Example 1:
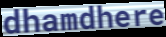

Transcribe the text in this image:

dhamdhere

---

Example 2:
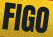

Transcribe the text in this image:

FIGO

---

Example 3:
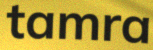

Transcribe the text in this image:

tamra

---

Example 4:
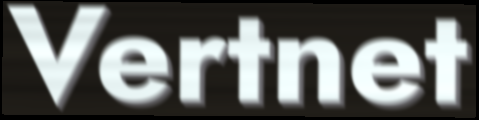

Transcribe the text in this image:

Vertnet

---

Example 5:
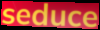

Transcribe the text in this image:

seduce